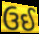
ઉઈ